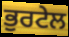
ਭੁਰਟੇਲ